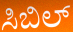
ಸಿಬಿಲ್